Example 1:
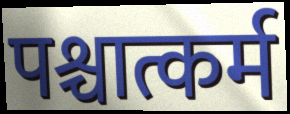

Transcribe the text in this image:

पश्चात्कर्म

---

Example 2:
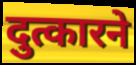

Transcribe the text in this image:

दुत्कारने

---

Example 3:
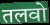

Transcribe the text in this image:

तलवो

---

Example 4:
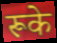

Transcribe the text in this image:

रूके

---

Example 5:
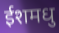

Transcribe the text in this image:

ईशमधु